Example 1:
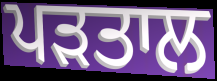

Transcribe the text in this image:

ਪੜਤਾਲ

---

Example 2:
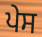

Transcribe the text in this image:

ਪੇਸ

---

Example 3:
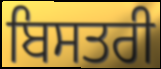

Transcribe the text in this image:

ਬਿਸਤਰੀ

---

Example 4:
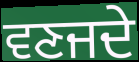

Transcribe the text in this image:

ਵਣਜਦੇ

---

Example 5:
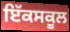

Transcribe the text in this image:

ਇੱਕਸਕੂਲ